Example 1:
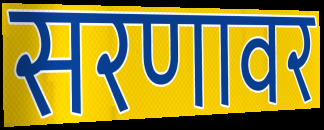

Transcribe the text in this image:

सरणावर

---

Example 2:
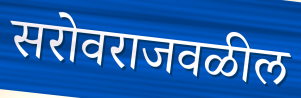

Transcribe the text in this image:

सरोवराजवळील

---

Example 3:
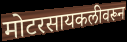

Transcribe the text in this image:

मोटरसायकलीवरून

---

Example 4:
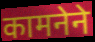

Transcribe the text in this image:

कामनेने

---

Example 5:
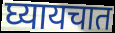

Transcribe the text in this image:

घ्यायचात